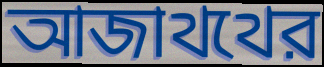
আজাথথের